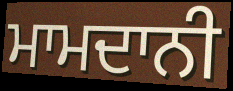
ਮਾਮਦਾਨੀ